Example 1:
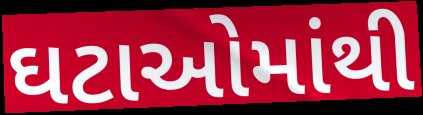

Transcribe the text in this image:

ઘટાઓમાંથી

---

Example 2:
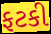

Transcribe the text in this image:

ફટકી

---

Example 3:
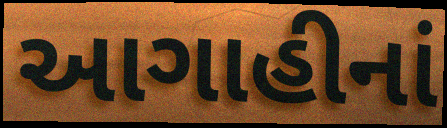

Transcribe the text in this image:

આગાહીનાં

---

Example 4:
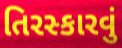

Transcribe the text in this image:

તિરસ્કારવું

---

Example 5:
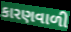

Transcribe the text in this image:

કારણવાળી